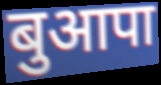
बुआपा